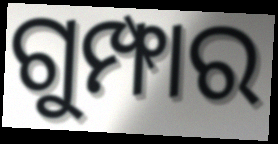
ଗୁମ୍ଫାର